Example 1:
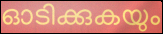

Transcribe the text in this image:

ഓടിക്കുകയും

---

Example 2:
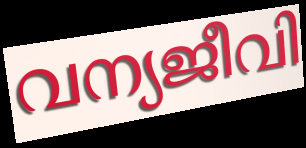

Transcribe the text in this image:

വന്യജീവി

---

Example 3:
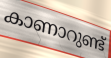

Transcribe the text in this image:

കാണാറുണ്ട്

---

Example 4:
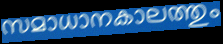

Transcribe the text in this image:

സമാധാനകാലത്തും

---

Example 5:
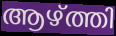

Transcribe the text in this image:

ആഴ്ത്തി